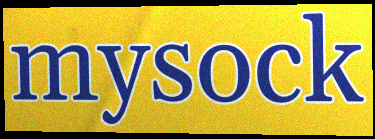
mysock